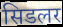
सिडलर